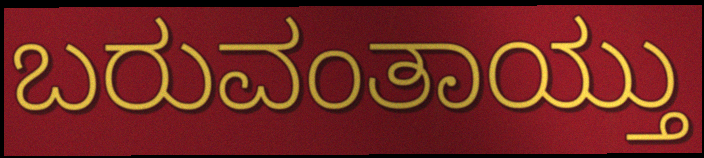
ಬರುವಂತಾಯ್ತು